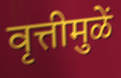
वृत्तीमुळें